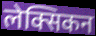
लेक्सिकन